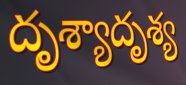
దృశ్యాదృశ్య